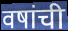
वषांची